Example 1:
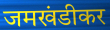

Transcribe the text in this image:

जमखंडीकर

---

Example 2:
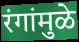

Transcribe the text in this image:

रंगांमुळे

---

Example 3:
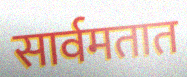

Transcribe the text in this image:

सार्वमतात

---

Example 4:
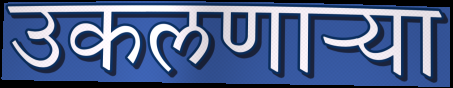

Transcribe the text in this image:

उकलणाऱ्या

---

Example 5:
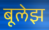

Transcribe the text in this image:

बूलेझ